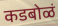
कडबोळं